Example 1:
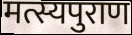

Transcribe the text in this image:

मत्स्यपुराण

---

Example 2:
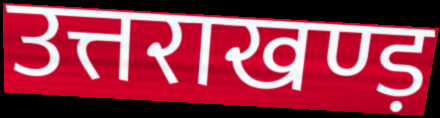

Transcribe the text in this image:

उत्तराखण्ड़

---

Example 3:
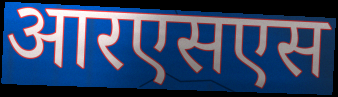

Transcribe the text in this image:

आरएसएस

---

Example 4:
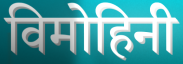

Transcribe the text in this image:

विमोहिनी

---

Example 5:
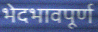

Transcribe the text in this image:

भेदभावपूर्ण